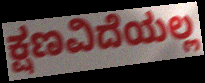
ಕ್ಷಣವಿದೆಯಲ್ಲ